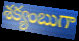
శక్యంబుగా